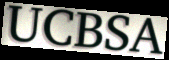
UCBSA